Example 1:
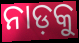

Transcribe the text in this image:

ନାଡ଼କୁ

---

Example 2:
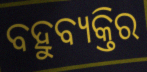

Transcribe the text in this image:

ବହୁବ୍ୟକ୍ତିର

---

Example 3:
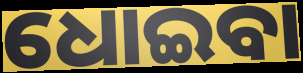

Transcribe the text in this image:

ଧୋଇବା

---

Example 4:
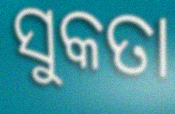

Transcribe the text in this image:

ସୁକତା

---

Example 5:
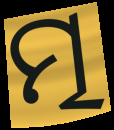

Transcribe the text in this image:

ତ୍ମ